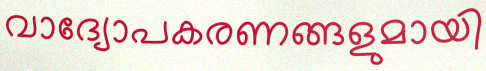
വാദ്യോപകരണങ്ങളുമായി